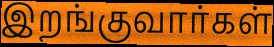
இறங்குவார்கள்